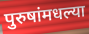
पुरुषांमधल्या